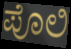
ಪೊಲಿ